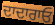
ਦਾਦਾਰਾਓ